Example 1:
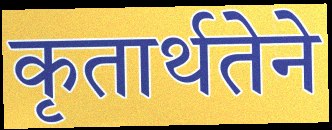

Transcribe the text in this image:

कृतार्थतेने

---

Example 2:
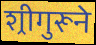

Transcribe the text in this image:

श्रीगुरूने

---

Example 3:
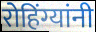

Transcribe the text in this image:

रोहिंग्यांनी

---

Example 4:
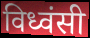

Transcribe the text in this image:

विध्वंसी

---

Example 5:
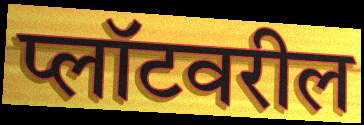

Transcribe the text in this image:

प्लॉटवरील